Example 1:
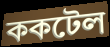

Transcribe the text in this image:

ককটেল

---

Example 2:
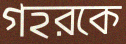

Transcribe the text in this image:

গহরকে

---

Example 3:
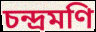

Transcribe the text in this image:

চন্দ্রমণি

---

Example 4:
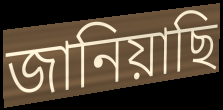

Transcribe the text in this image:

জানিয়াছি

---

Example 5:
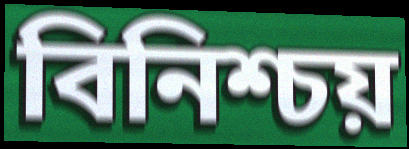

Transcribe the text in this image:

বিনিশ্চয়